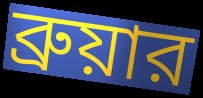
ব্রুয়ার